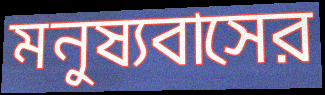
মনুষ্যবাসের